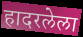
हादरलेला